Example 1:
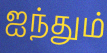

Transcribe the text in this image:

ஐந்தும்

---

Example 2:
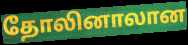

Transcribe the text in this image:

தோலினாலான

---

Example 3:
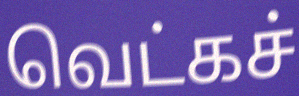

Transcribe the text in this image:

வெட்கச்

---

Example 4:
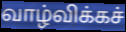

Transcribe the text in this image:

வாழ்விக்கச்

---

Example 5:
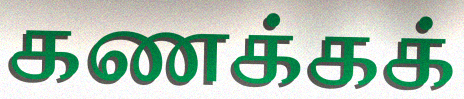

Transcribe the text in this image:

கணக்கக்